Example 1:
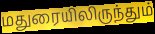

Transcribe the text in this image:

மதுரையிலிருந்தும்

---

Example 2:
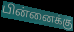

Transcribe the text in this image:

பின்னைக்கு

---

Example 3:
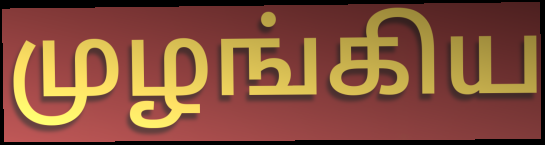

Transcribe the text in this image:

முழங்கிய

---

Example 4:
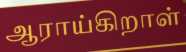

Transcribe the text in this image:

ஆராய்கிறாள்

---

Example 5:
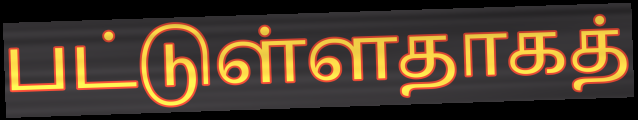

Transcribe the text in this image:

பட்டுள்ளதாகத்